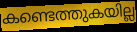
കണ്ടെത്തുകയില്ല